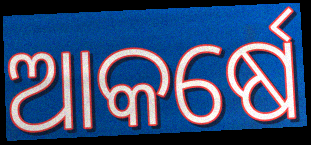
ଆକର୍ଷେ